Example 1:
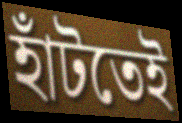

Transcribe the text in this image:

হাঁটতেই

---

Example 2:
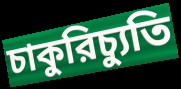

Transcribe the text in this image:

চাকুরিচ্যুতি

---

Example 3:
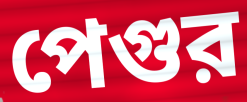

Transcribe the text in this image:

পেগুর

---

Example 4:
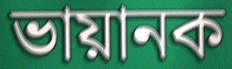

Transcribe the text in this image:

ভায়ানক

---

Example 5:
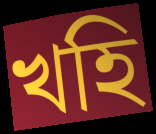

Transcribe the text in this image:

খহি